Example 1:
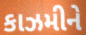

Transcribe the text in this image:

કાઝમીને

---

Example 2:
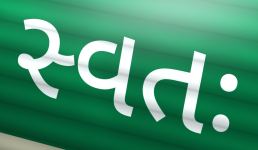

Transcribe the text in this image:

સ્વતઃ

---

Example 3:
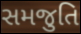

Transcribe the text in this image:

સમજુતિ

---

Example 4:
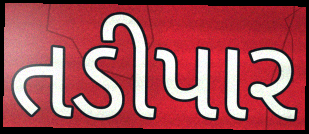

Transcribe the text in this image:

તડીપાર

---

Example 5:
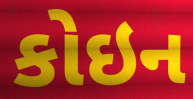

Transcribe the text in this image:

કોઇન